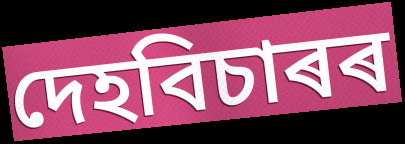
দেহবিচাৰৰ